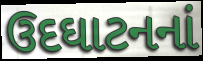
ઉદઘાટનનાં